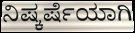
ನಿಷ್ಕರ್ಷೆಯಾಗಿ